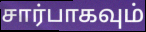
சார்பாகவும்